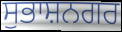
ਸੁਭਾਸ਼ਨਗਰ